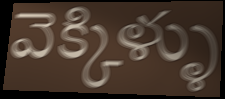
వెక్కిళ్ళు